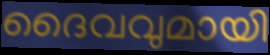
ദൈവവുമായി